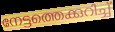
നേട്ടത്തെക്കുറിച്ച്